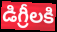
డిగ్రీలకి